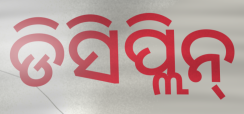
ଡିସିପ୍ଲିନ୍